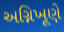
અગ્નિખૂણે